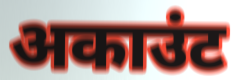
अकाउंट